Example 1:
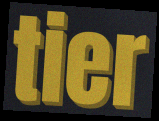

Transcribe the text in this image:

tier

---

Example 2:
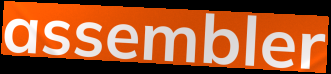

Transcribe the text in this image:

assembler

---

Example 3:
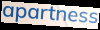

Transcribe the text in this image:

apartness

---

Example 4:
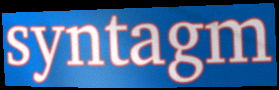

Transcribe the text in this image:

syntagm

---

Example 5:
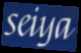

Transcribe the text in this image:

seiya